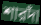
শারদাঁ